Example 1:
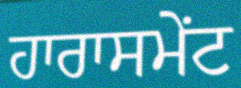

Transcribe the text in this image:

ਹਾਰਾਸਮੇਂਟ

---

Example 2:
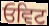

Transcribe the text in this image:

ਓਵਿਟ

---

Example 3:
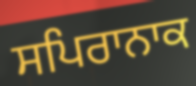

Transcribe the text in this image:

ਸਪਿਰਾਨਾਕ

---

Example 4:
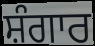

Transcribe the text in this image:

ਸ਼ੰਗਾਰ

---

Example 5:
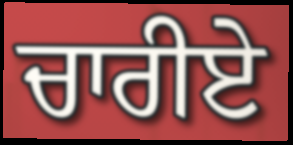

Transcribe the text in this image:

ਚਾਰੀਏ